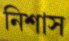
নিশাস